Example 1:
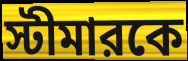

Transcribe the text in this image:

স্টীমারকে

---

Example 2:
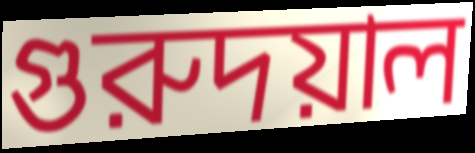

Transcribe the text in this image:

গুরুদয়াল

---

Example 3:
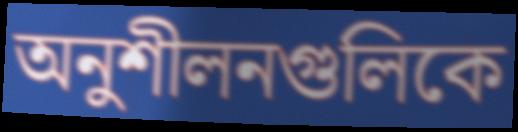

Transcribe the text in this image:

অনুশীলনগুলিকে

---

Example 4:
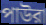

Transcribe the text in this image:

পাউরা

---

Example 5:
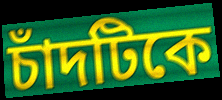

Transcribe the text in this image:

চাঁদটিকে